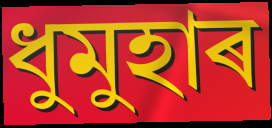
ধুমুহাৰ